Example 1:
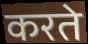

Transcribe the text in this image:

करते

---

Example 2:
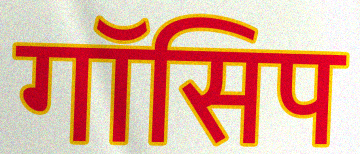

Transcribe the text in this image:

गॉसिप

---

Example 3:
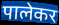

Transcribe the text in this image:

पालेकर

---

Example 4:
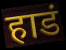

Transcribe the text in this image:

हाडं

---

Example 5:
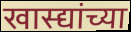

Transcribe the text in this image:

खास्द्यांच्या